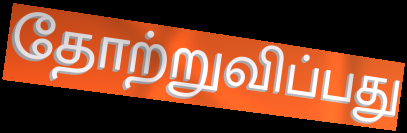
தோற்றுவிப்பது